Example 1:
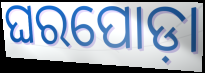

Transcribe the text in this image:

ଘରପୋଡ଼ା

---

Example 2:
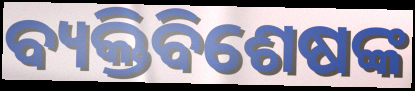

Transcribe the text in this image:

ବ୍ୟକ୍ତିବିଶେଷଙ୍କ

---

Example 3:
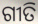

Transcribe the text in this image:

ଗୀତି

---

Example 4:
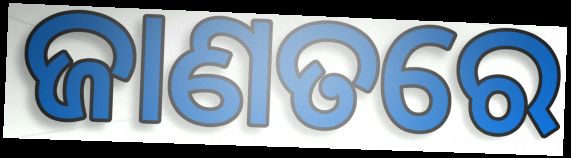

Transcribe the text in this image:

ଜାଣତରେ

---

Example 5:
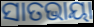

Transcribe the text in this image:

ସାତଭାୟା